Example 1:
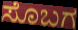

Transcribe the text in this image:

ಸೊಬಗ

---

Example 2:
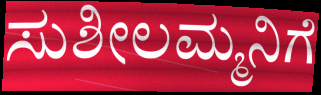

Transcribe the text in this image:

ಸುಶೀಲಮ್ಮನಿಗೆ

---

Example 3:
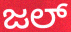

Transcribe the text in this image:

ಜಲ್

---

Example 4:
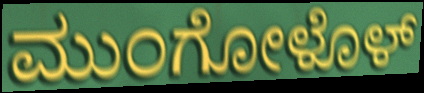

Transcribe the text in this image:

ಮುಂಗೋಳೊಳ್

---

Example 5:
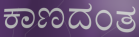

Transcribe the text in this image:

ಕಾಣದಂತ